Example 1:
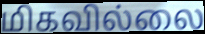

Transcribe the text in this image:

மிகவில்லை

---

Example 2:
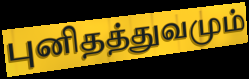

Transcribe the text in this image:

புனிதத்துவமும்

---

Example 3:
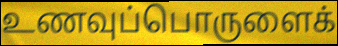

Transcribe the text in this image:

உணவுப்பொருளைக்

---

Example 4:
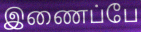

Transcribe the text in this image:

இணைப்பே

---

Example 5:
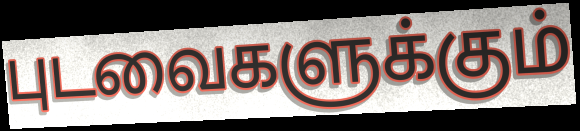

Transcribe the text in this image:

புடவைகளுக்கும்